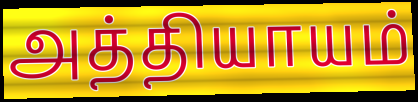
அத்தியாயம்